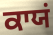
ਕਾਯਂ